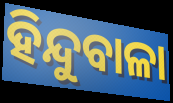
ହିନ୍ଦୁବାଳା